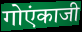
गोएंकाजी